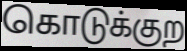
கொடுக்குற